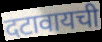
दटावायची